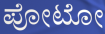
ಪೋಟೋ